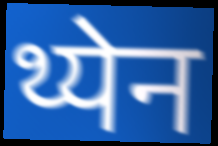
थ्येन